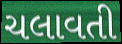
ચલાવતી